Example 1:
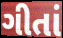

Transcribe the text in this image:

ગીતાં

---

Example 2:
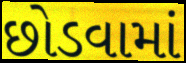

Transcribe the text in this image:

છોડવામાં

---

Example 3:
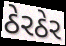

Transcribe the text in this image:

ઠેરઠેર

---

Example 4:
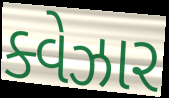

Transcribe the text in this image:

ક્વેઝાર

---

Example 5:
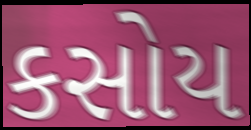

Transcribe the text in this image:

કસોય